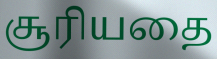
சூரியதை